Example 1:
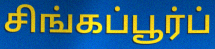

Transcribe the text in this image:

சிங்கப்பூர்ப்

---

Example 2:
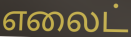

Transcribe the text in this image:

எலைட்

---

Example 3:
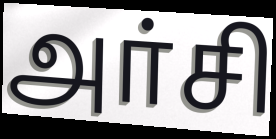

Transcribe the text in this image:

அர்சி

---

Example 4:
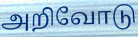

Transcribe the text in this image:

அறிவோடு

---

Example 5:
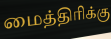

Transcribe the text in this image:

மைத்திரிக்கு